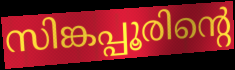
സിങ്കപ്പൂരിന്റെ